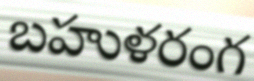
బహుళరంగ